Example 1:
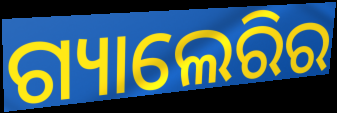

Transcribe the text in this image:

ଗ୍ୟାଲେରିର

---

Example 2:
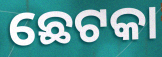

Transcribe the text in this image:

ଛେଟକା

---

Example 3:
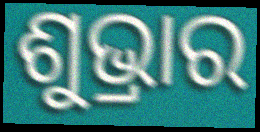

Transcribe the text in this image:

ଶୁଭ୍ରାର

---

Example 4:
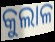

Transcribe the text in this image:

କୁଲାଳ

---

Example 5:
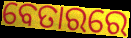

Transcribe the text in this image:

ବେତାରରେ